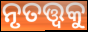
ନୃତତ୍ତ୍ଵକୁ